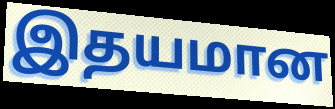
இதயமான